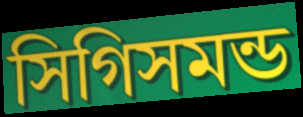
সিগিসমন্ড